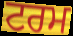
ਟਰਮ